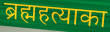
ब्रह्महत्याका